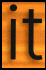
it